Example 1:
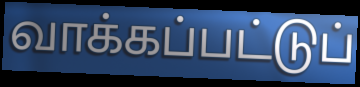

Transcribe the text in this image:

வாக்கப்பட்டுப்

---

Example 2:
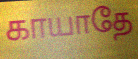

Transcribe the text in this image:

காயாதே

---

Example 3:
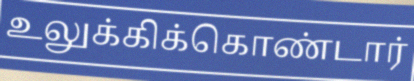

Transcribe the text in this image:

உலுக்கிக்கொண்டார்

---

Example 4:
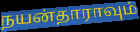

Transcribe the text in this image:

நயன்தாராவும்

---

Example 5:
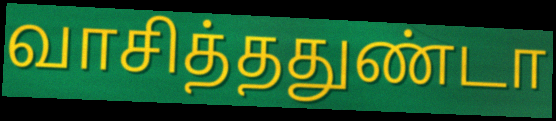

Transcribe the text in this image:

வாசித்ததுண்டா